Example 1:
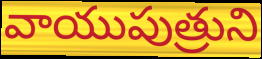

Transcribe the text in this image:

వాయుపుత్రుని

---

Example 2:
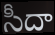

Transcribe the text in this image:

సీదా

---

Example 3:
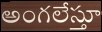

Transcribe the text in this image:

అంగలేస్తూ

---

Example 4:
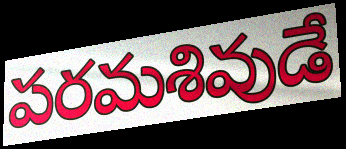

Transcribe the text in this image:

పరమశివుడే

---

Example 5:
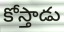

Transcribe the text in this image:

కోస్తాడు